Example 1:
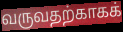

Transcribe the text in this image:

வருவதற்காகக்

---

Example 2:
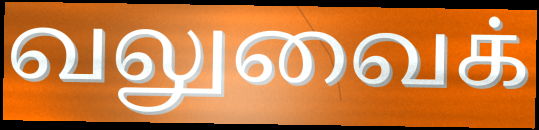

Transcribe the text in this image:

வலுவைக்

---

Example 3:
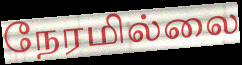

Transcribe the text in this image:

நேரமில்லை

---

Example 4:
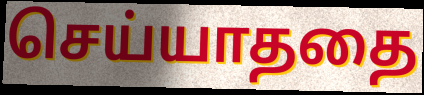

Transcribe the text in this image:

செய்யாததை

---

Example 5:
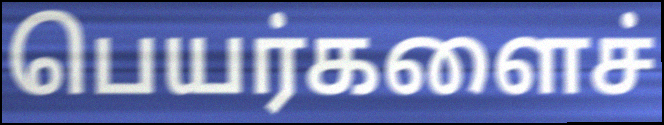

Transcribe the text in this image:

பெயர்களைச்